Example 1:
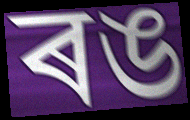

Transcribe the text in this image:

ৰঙ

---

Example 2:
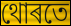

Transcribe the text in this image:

থোৰতে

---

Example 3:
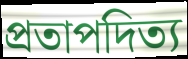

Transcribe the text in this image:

প্ৰতাপদিত্য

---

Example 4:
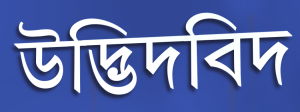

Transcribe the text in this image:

উদ্ভিদবিদ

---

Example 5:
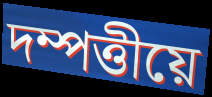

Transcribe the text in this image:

দম্পত্তীয়ে